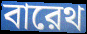
বারেথ